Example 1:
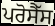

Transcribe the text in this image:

ਪਰੋਸੈੱਸ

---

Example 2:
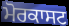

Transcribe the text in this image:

ਮੋਰਕਾਸਟ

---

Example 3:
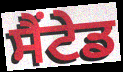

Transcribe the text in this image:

ਸੈਂਟੇਡ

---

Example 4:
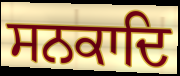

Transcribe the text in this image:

ਸਨਕਾਦਿ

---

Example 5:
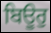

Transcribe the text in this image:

ਬਿਊਰੁ